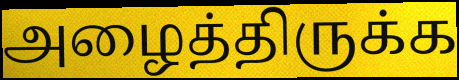
அழைத்திருக்க